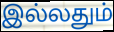
இல்லதும்